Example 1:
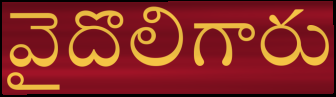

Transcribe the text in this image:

వైదొలిగారు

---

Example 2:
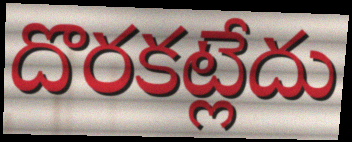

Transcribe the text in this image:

దొరకట్లేదు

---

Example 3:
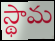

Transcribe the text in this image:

స్థామ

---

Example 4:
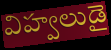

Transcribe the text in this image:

విహ్వలుడై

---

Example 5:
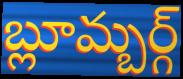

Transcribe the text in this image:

బ్లూమ్బర్గ్